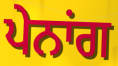
ਪੇਨਾਂਗ